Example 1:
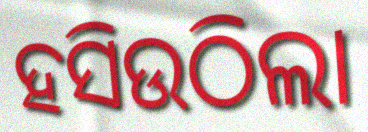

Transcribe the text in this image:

ହସିଉଠିଲା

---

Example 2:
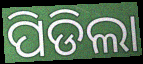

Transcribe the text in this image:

ପିଡିଲା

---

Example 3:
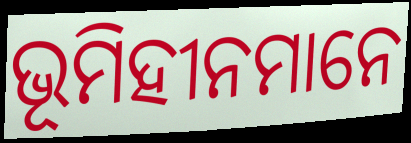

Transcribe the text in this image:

ଭୂମିହୀନମାନେ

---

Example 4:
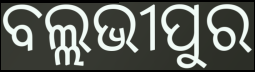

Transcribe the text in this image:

ବଲ୍ଲଭୀପୁର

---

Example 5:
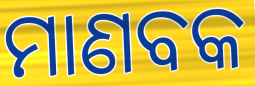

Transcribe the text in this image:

ମାଣବକ